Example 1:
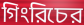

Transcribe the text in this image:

গিংরিচের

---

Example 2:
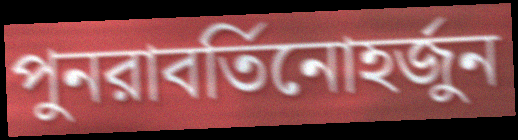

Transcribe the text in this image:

পুনরাবর্তিনোহর্জুন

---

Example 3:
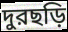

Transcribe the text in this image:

দুরছড়ি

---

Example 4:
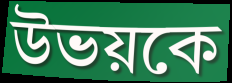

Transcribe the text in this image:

উভয়কে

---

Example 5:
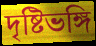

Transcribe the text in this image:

দৃষ্টিভঙ্গি